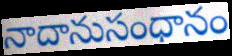
నాదానుసంధానం